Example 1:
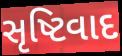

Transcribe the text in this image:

સૃષ્ટિવાદ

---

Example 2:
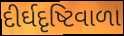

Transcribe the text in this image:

દીર્ઘદૃષ્ટિવાળા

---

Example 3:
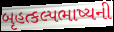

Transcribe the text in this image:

બૃહત્કલ્પભાષ્યની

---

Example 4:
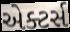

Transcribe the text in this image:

એક્ટર્સ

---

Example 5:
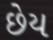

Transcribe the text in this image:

છેય